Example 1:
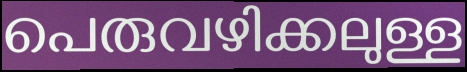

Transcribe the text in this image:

പെരുവഴിക്കലുള്ള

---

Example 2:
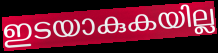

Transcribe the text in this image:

ഇടയാകുകയില്ല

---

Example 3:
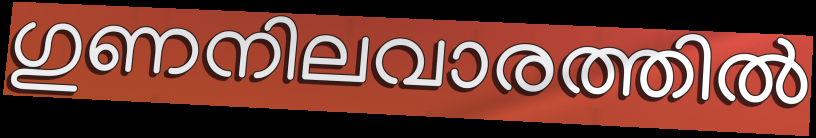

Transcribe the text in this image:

ഗുണനിലവാരത്തിൽ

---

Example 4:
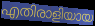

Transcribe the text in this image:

എതിരാളിയായ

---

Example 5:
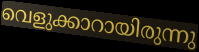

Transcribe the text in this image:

വെളുക്കാറായിരുന്നു